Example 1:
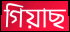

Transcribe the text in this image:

গিয়াছ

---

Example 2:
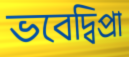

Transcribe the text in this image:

ভবেদ্বিপ্রা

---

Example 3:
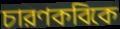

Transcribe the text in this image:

চারণকবিকে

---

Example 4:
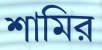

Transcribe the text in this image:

শামির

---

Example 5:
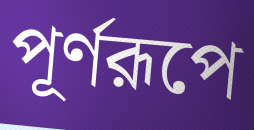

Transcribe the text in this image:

পূর্ণরূপে